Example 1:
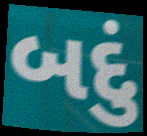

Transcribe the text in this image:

બદું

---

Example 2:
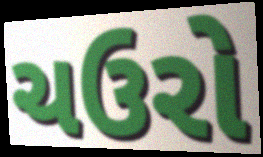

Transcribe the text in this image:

ચઉરો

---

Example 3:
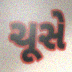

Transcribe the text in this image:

ચૂસે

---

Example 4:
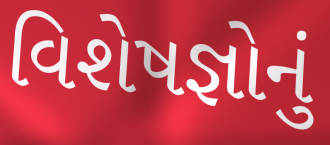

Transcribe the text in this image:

વિશેષજ્ઞોનું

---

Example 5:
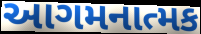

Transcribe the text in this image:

આગમનાત્મક